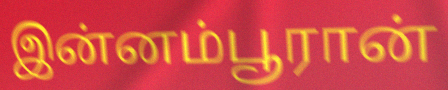
இன்னம்பூரான்